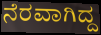
ನೆರವಾಗಿದ್ದ